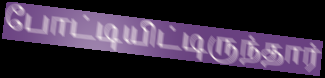
போட்டியிட்டிருந்தார்